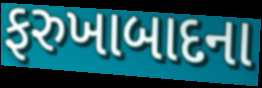
ફરુખાબાદના